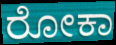
ರೋಕಾ